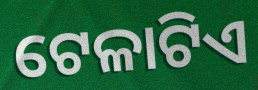
ଟେଳାଟିଏ